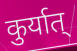
कुर्यात्